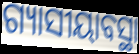
ଗ୍ୟାସୀୟାବସ୍ଥା